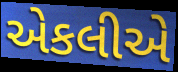
એકલીએ